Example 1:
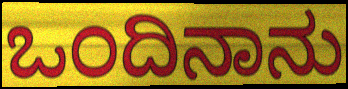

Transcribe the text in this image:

ಒಂದಿನಾನು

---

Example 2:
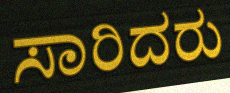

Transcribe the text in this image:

ಸಾರಿದರು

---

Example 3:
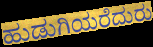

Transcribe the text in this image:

ಹುಡುಗಿಯರೆದುರು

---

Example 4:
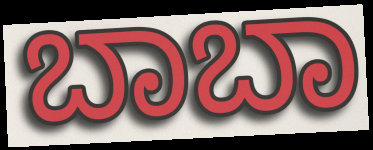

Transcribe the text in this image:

ಬಾಬಾ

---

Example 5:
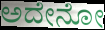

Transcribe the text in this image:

ಅದೇನೋ